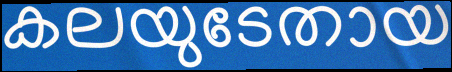
കലയുടേതായ